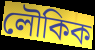
লৌকিক